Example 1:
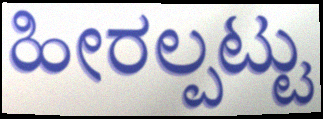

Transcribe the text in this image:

ಹೀರಲ್ಪಟ್ಟು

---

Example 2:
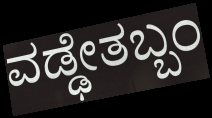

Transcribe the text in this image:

ವಡ್ಢೇತಬ್ಬಂ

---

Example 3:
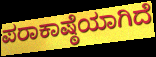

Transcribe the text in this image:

ಪರಾಕಾಷ್ಠೆಯಾಗಿದೆ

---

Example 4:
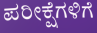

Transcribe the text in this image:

ಪರೀಕ್ಷೆಗಳಿಗೆ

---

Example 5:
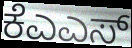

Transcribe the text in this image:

ಕೆಎಎಸ್